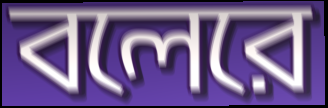
বলেরে